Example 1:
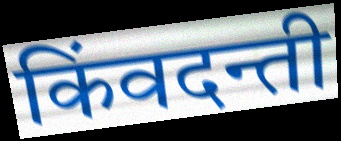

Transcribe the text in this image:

किंवदन्ती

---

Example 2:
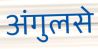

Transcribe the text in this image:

अंगुलसे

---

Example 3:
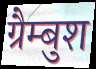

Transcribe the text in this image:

ग्रैम्बुश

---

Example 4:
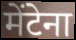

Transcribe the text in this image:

मेंटेना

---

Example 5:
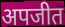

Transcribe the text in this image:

अपजीत